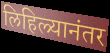
लिहिल्यानंतर